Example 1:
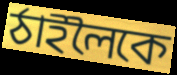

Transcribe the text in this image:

ঠাইলৈকে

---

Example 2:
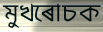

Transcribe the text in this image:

মুখৰোচক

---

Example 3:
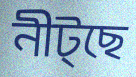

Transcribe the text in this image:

নীট্‌ছে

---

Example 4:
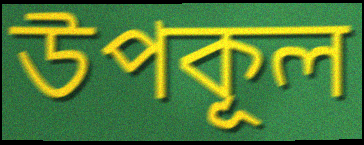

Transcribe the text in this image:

উপকূল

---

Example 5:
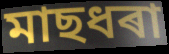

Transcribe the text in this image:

মাছধৰা